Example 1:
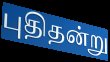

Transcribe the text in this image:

புதிதன்று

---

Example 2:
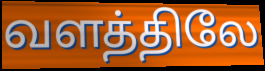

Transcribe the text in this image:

வளத்திலே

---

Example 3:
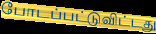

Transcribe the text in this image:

போடப்பட்டுவிட்டது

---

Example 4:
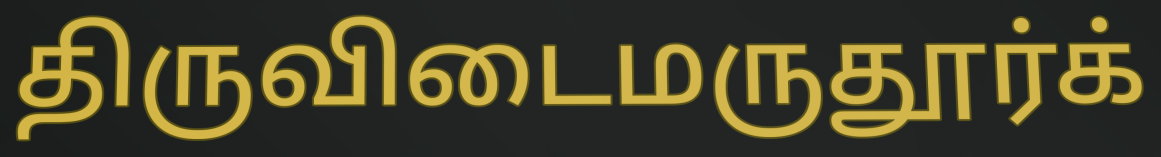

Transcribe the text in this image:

திருவிடைமருதூர்க்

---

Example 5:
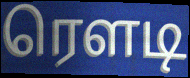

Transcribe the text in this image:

ரெளடி